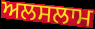
ਅਲਸਲਾਮ